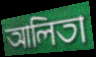
আলিতা